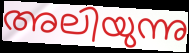
അലിയുന്നു